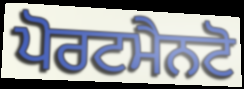
ਪੋਰਟਮੈਨਟੋ